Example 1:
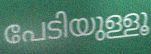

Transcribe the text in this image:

പേടിയുള്ളൂ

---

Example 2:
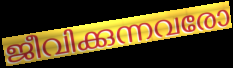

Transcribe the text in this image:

ജീവിക്കുന്നവരോ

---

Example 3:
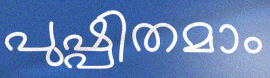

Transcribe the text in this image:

പുഷ്പിതമാം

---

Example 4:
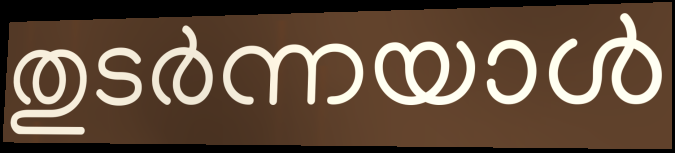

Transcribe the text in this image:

തുടർന്നയാൾ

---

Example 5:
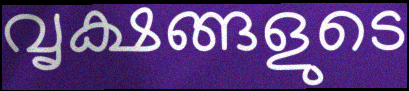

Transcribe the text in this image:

വൃക്ഷങ്ങളുടെ